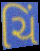
ચિં